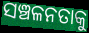
ସଞ୍ଚଳନତାକୁ